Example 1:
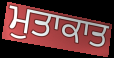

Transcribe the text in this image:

ਮੁਤਾਕਾਤ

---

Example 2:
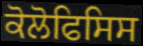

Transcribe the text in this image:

ਕੋਲੋਫਿਸਿਸ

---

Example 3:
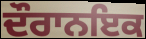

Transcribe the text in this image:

ਦੌਰਾਨਇਕ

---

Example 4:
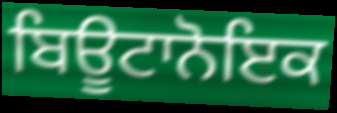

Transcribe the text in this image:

ਬਿਊਟਾਨੋਇਕ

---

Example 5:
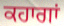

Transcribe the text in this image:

ਕਹਾਗਾਂ